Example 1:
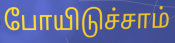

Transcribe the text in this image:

போயிடுச்சாம்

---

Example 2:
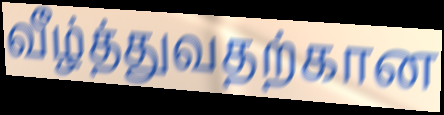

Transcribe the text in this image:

வீழ்த்துவதற்கான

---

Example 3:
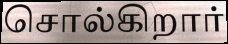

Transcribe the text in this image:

சொல்கிறார்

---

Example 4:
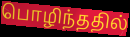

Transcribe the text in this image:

பொழிந்ததில்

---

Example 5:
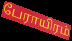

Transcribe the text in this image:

பேராயிரம்